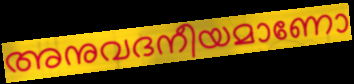
അനുവദനീയമാണോ